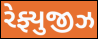
રેફ્યુજીઝ